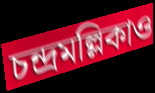
চন্দ্রমল্লিকাও